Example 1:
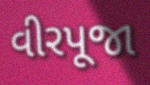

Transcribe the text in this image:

વીરપૂજા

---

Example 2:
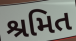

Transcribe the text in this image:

શ્રમિત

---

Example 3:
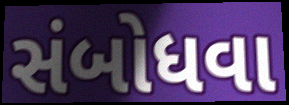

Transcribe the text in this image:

સંબોધવા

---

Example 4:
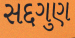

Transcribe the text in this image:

સદ્દગુણ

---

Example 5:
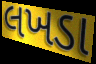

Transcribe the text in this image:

લખડા